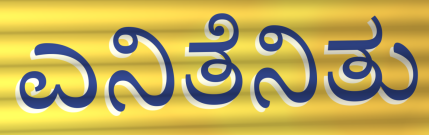
ಎನಿತೆನಿತು